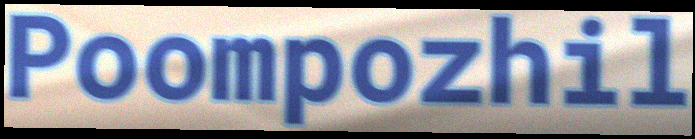
Poompozhil